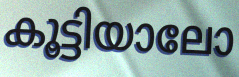
കൂട്ടിയാലോ